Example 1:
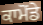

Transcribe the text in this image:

ਕਾਮੋਂਡੇ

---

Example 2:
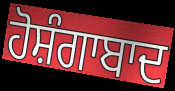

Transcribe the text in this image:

ਹੋਸ਼ੰਗਾਬਾਦ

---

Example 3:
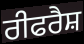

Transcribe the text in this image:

ਰੀਫਰੈਸ਼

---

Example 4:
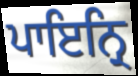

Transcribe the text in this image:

ਪਾਇਨ੍ਰਿ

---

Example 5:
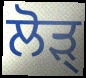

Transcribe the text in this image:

ਲੋੜ੍